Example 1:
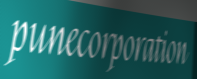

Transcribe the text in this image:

punecorporation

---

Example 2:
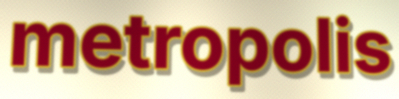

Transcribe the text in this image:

metropolis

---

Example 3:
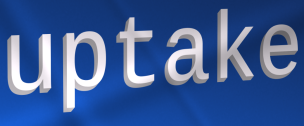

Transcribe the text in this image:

uptake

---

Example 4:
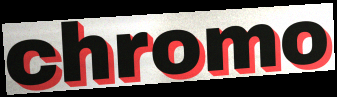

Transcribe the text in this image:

chromo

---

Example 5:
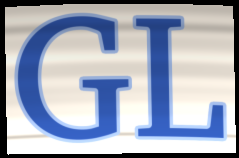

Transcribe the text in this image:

GL